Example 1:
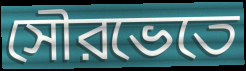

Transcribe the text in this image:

সৌরভেতে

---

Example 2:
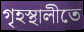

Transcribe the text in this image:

গৃহস্থালীতে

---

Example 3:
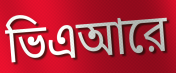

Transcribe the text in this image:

ভিএআরে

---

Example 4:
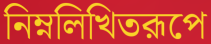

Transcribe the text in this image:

নিম্নলিখিতরূপে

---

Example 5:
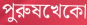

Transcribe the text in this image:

পুরুষখেকো